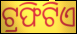
ଟ୍ରଫିଟିଏ